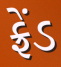
ફ્રેંડ